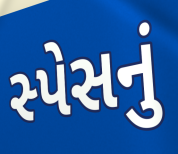
સ્પેસનું